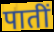
पातीं